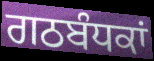
ਗਠਬੰਧਕਾਂ